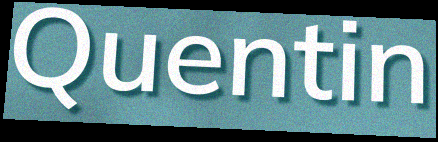
Quentin